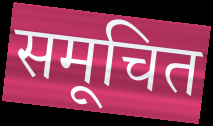
समूचित